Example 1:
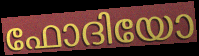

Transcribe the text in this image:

ഫോദിയോ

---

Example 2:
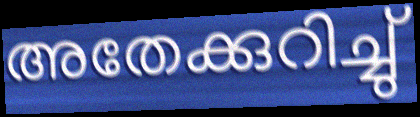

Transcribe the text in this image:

അതേക്കുറിച്ചു്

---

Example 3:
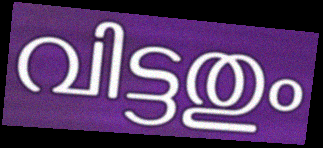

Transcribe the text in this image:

വിട്ടതും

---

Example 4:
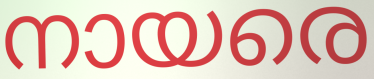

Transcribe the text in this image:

നായരെ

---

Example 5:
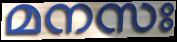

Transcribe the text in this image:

മനസഃ